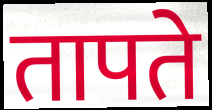
तापते